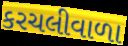
કરચલીવાળા